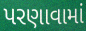
પરણાવામાં